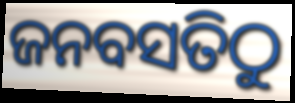
ଜନବସତିଠୁ